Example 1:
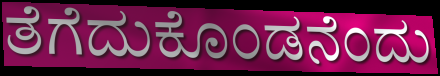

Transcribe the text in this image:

ತೆಗೆದುಕೊಂಡನೆಂದು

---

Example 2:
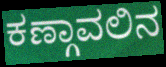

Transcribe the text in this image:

ಕಣ್ಗಾವಲಿನ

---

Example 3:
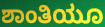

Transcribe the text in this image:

ಶಾಂತಿಯೂ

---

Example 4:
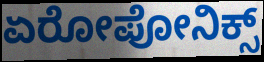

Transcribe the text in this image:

ಏರೋಪೋನಿಕ್ಸ್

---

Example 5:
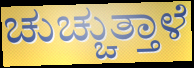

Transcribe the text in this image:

ಚುಚ್ಚುತ್ತಾಳೆ